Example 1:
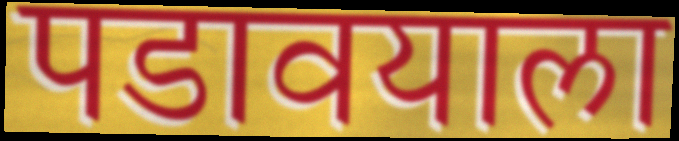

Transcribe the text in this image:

पडावयाला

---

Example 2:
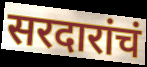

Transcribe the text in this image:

सरदारांचं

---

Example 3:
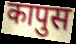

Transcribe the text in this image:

कापुस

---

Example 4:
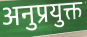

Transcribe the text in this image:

अनुप्रयुक्त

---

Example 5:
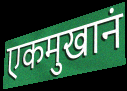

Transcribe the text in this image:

एकमुखानं